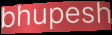
bhupesh